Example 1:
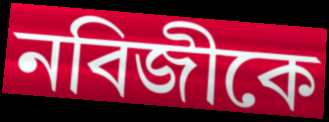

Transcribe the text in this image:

নবিজীকে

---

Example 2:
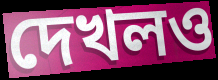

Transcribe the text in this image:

দেখলও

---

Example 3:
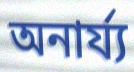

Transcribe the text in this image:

অনার্য্য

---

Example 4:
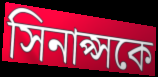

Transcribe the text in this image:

সিনাপ্সকে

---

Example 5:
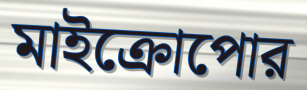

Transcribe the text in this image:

মাইক্রোপোর